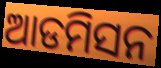
ଆଡମିସନ